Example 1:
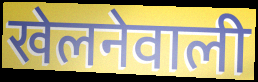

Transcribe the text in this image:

खेलनेवाली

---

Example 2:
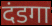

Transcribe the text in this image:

दंडगा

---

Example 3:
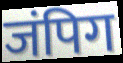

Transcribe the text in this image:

जंपिग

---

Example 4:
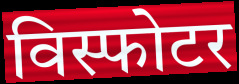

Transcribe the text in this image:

विस्फोटर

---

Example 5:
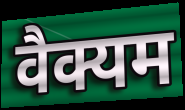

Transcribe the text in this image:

वैक्यम